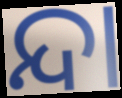
ନ୍ଦା